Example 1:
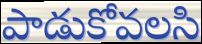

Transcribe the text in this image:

పాడుకోవలసి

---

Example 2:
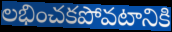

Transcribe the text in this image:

లభించకపోవటానికి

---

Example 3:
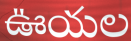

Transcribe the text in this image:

ఊయల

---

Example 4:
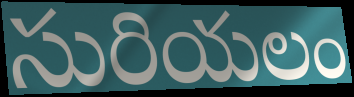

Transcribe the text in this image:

సురియలం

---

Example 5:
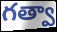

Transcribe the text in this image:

గత్వా